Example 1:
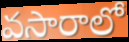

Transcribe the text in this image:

వసారాలో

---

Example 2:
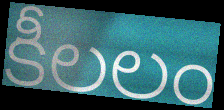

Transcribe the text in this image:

కీలలం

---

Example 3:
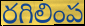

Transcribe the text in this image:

రగిలింప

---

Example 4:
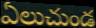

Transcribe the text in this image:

ఏలుచుండ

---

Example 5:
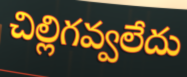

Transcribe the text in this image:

చిల్లిగవ్వలేదు